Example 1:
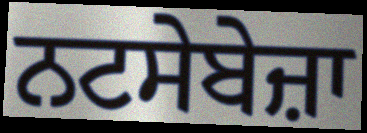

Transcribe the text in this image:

ਨਟਸੇਬੇਜ਼ਾ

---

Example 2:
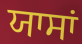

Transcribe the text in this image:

ਯਾਸਾਂ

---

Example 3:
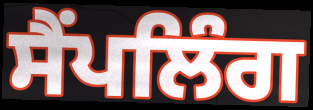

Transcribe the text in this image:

ਸੈਂਪਲਿੰਗ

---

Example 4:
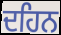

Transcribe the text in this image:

ਦਹਿਨ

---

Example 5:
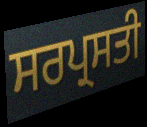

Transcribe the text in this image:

ਸਰਪ੍ਰਸਤੀ